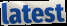
latest